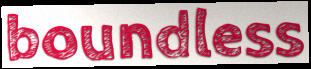
boundless